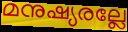
മനുഷ്യരല്ലേ